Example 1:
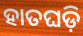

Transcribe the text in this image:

ହାତଘଡ଼ି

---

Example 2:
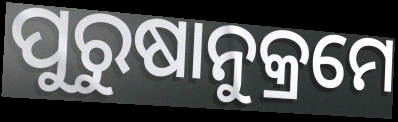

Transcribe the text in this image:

ପୁରୁଷାନୁକ୍ରମେ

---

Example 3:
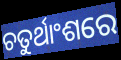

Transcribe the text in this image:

ଚତୁର୍ଥାଂଶରେ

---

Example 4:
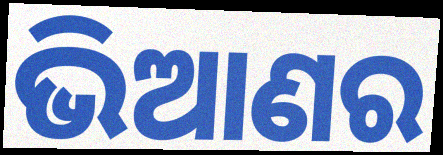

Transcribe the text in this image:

ଭିଆଣର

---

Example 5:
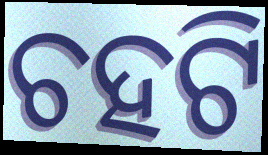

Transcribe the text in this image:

ଚହଟି